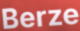
Berze